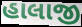
હાલાજી